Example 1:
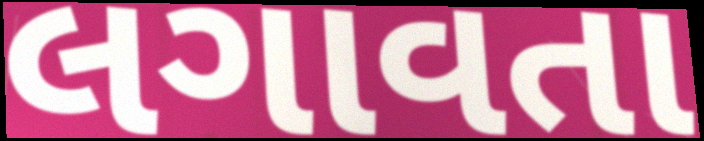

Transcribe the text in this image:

લગાવતા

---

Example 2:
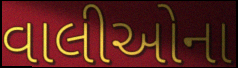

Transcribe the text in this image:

વાલીઓના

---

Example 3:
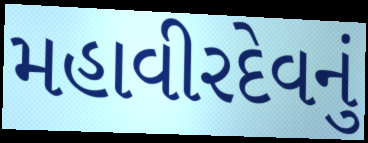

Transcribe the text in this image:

મહાવીરદેવનું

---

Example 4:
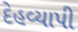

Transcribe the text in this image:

દેહવ્યાપી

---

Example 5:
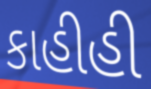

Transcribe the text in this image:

કાહીહી